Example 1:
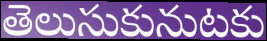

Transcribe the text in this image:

తెలుసుకునుటకు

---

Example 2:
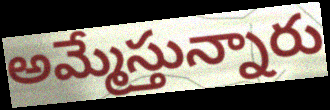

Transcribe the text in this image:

అమ్మేస్తున్నారు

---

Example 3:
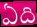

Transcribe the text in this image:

ఏది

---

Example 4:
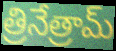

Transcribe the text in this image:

త్రినేత్రామ్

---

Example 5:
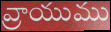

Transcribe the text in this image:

వ్రాయుము